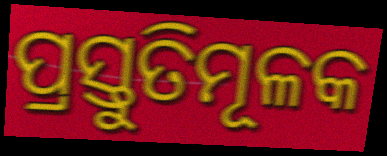
ପ୍ରସ୍ତୁତିମୂଳକ